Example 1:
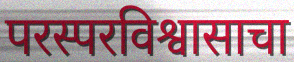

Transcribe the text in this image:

परस्परविश्वासाचा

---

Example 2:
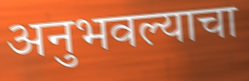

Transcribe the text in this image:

अनुभवल्याचा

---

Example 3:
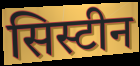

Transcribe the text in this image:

सिस्टीन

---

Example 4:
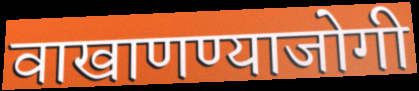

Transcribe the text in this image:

वाखाणण्याजोगी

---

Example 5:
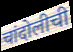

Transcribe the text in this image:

चांदोलीची